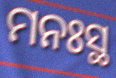
ମନଃସ୍ଥ